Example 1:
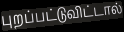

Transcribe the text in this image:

புறப்பட்டுவிட்டால்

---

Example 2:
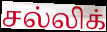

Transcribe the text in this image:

சல்லிக்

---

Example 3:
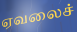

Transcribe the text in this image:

ஏவலைச்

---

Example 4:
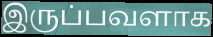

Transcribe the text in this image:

இருப்பவளாக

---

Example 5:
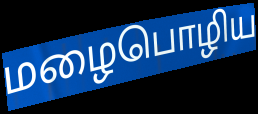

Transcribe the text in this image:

மழைபொழிய